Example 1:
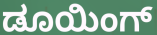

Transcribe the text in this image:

ಡೂಯಿಂಗ್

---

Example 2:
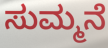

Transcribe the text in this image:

ಸುಮ್ಮನೆ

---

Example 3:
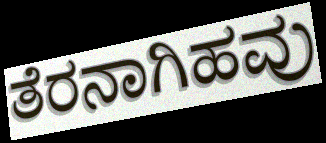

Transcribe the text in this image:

ತೆರನಾಗಿಹವು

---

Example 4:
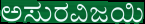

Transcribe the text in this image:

ಅಸುರವಿಜಯಿ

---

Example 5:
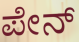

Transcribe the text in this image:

ಪೇನ್